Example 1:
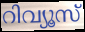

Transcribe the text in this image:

റിവ്യൂസ്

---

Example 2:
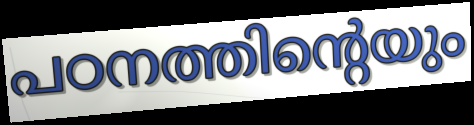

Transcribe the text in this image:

പഠനത്തിന്റെയും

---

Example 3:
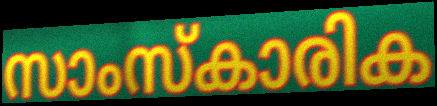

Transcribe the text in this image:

സാംസ്കാരിക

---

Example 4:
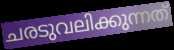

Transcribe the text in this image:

ചരടുവലിക്കുന്നത്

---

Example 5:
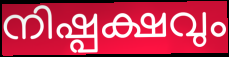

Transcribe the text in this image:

നിഷ്പക്ഷവും